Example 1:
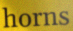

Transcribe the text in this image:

horns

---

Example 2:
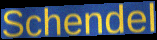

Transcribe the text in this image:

Schendel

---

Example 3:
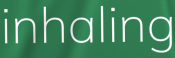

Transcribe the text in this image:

inhaling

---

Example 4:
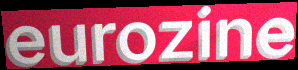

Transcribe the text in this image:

eurozine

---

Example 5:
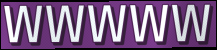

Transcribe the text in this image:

wwwww